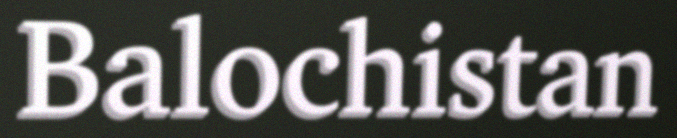
Balochistan